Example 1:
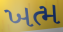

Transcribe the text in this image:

ખત્મ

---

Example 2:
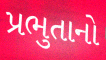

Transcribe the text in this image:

પ્રભુતાનો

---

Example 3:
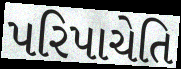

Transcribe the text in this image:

પરિપાચેતિ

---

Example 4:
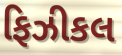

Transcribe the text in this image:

ફિઝીકલ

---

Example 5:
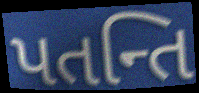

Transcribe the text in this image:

પતન્તિ